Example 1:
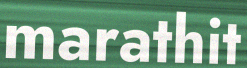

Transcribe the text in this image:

marathit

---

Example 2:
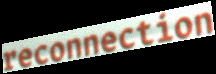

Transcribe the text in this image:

reconnection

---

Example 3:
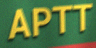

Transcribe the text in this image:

APTT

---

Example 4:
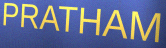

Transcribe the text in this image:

PRATHAM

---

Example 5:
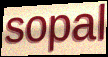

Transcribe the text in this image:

sopal